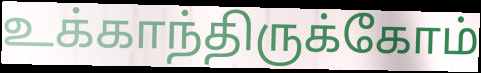
உக்காந்திருக்கோம்